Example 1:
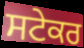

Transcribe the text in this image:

ਸਟੇਕਰ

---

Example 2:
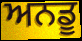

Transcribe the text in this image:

ਅਨਡੂ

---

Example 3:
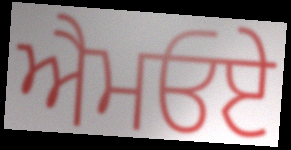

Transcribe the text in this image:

ਐਮਓਏ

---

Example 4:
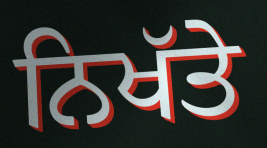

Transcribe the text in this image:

ਨਿਖੱਤੇ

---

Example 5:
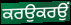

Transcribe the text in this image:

ਕਰਉਕਰਉਂ